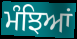
ਮੰਝਿਆਂ